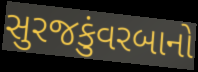
સુરજકુંવરબાનો